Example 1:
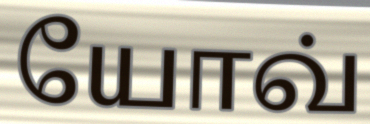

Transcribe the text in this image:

யோவ்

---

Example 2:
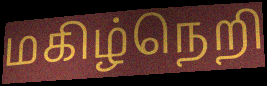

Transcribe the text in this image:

மகிழ்நெறி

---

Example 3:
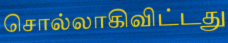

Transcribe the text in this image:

சொல்லாகிவிட்டது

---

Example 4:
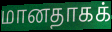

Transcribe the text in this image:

மானதாகக்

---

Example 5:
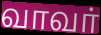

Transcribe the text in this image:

வாவர்